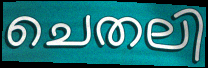
ചെതലി